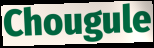
Chougule